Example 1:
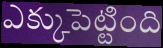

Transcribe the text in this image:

ఎక్కుపెట్టింది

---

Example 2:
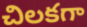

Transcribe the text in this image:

చిలకగా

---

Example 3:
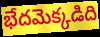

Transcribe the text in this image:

భేదమెక్కడిది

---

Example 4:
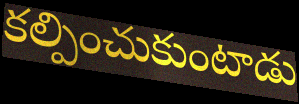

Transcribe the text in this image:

కల్పించుకుంటాడు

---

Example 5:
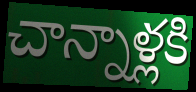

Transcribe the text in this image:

చాన్నాళ్లకి